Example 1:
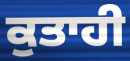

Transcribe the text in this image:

ਕੁਤਾਹੀ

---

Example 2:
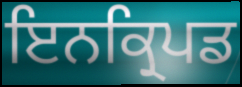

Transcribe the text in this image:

ਇਨਕ੍ਰਿਪਡ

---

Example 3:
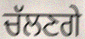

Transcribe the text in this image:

ਚੱਲਣਗੇ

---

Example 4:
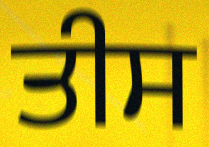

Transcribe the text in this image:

ਤੀਸ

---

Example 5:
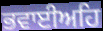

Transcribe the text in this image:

ਭਵਾਈਅਹਿ